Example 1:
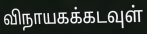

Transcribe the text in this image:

விநாயகக்கடவுள்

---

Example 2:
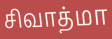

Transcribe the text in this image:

சிவாத்மா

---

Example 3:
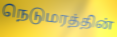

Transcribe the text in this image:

நெடுமரத்தின்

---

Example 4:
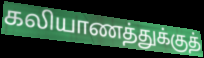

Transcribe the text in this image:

கலியாணத்துக்குத்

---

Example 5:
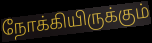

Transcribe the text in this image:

நோக்கியிருக்கும்